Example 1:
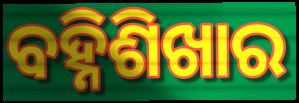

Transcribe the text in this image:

ବହ୍ନିଶିଖାର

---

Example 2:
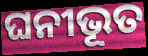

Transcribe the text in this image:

ଘନୀଭୂତ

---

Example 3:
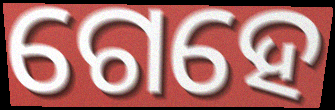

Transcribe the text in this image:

ଗେହେ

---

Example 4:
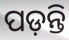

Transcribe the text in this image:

ପଡ଼ନ୍ତି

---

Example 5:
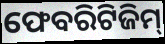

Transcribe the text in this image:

ଫେବରିଟିଜିମ୍